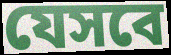
যেসবে